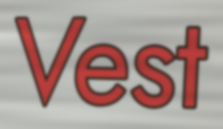
Vest